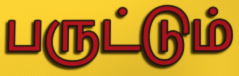
பருட்டும்